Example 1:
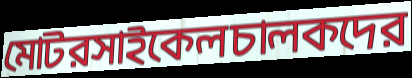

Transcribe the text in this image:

মোটরসাইকেলচালকদের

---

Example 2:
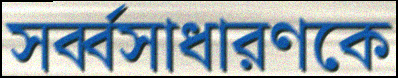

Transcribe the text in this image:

সর্ব্বসাধারণকে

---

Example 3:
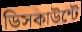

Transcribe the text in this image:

ডিসকাউন্টে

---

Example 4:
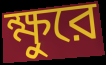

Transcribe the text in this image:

ক্ষুরে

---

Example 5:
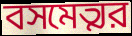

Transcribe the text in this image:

বসমেত্মর